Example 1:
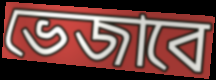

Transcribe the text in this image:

ভেজাবে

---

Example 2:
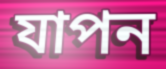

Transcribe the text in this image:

যাপন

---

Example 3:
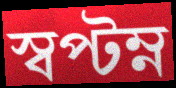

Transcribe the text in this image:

স্বপ্টম্ন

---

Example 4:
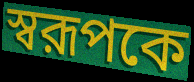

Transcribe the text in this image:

স্বরূপকে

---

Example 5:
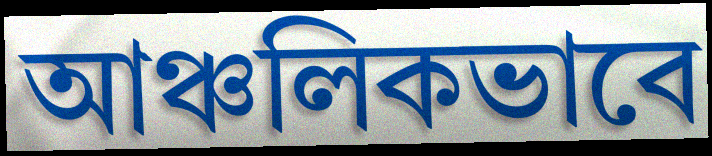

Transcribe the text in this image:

আঞ্চলিকভাবে